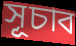
সূচাব